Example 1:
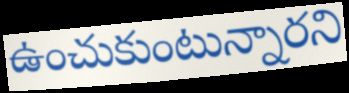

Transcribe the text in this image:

ఉంచుకుంటున్నారని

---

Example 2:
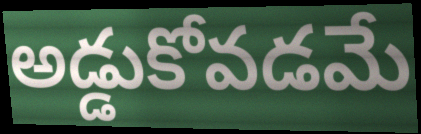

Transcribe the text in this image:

అడ్డుకోవడమే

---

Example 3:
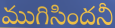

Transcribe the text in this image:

ముగిసిందనీ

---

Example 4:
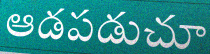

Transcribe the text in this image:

ఆడపడుచూ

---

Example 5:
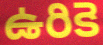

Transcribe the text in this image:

ఉరికె